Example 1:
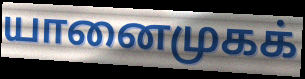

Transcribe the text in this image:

யானைமுகக்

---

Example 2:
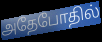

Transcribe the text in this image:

அதேபோதில்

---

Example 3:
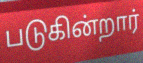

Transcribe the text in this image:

படுகின்றார்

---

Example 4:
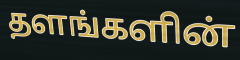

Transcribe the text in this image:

தளங்களின்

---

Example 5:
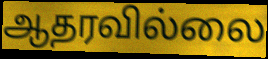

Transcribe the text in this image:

ஆதரவில்லை